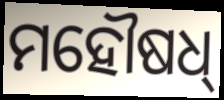
ମହୌଷଧ୍